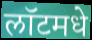
लॉटमधे